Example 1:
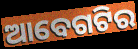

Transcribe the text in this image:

ଆବେଗଟିର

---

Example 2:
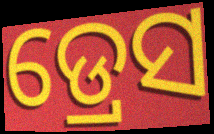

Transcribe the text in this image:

ଡ୍ରେସ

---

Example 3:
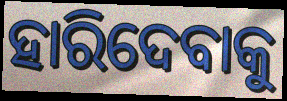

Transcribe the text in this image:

ହାରିଦେବାକୁ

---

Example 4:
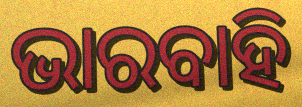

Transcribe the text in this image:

ଭାରବାହି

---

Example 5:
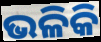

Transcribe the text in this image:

ଭଳିକି